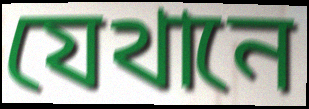
যেথানে